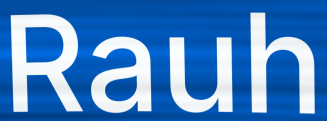
Rauh